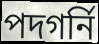
পদগর্নি